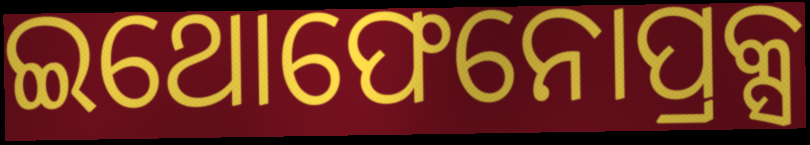
ଇଥୋଫେନୋପ୍ରକ୍ସ